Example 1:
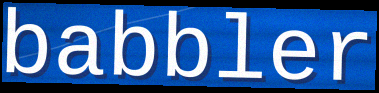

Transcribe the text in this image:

babbler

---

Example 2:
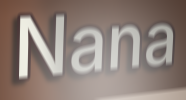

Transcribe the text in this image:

Nana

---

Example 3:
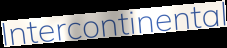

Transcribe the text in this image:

Intercontinental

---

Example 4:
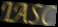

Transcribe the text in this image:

IASC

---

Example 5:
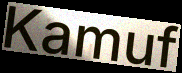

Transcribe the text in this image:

Kamuf